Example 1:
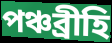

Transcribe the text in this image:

পঞ্চব্রীহি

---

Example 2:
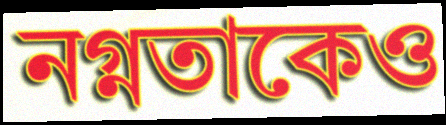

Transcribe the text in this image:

নগ্নতাকেও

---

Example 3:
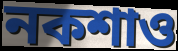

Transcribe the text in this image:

নকশাও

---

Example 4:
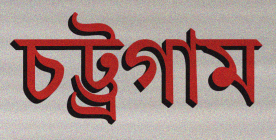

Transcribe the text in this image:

চট্ট্রগাম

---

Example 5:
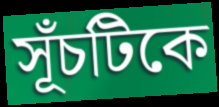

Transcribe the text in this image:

সূঁচটিকে